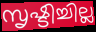
സൃഷ്ടിച്ചില്ല